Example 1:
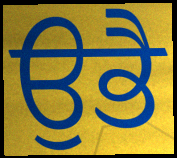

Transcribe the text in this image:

ਉਭੈ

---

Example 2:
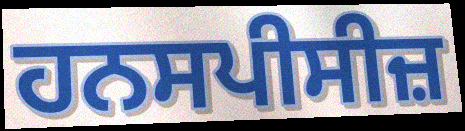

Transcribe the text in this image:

ਹਨਸਪੀਸੀਜ਼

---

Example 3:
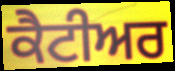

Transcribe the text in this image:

ਕੈਟੀਅਰ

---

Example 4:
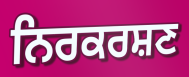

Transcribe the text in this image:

ਨਿਰਕਰਸ਼ਣ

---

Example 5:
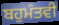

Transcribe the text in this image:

ਬਹੁਮੰਤਵੀ